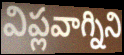
విప్లవాగ్నిని